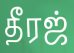
தீரஜ்